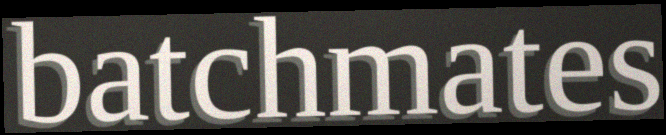
batchmates